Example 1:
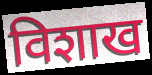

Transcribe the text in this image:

विशाख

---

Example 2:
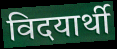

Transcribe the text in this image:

विदयार्थी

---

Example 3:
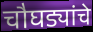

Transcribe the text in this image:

चौघड्यांचे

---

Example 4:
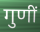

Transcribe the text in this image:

गुणीं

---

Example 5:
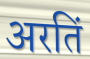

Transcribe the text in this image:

अरतिं